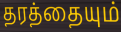
தரத்தையும்